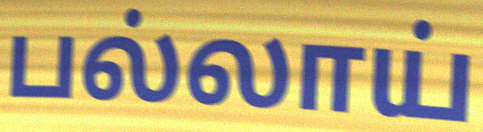
பல்லாய்